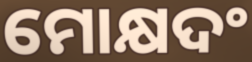
ମୋକ୍ଷଦଂ